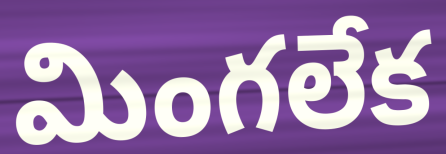
మింగలేక